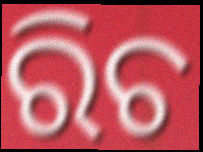
ରିଚ